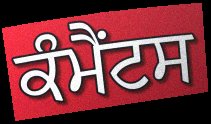
ਕੰਮੈਂਟਸ